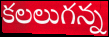
కలలుగన్న